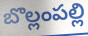
బొల్లంపల్లి